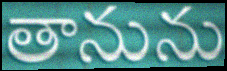
తానును